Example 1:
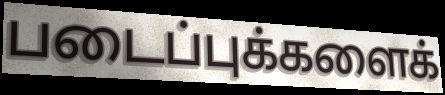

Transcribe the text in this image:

படைப்புக்களைக்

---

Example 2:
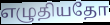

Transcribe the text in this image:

எழுதியதோ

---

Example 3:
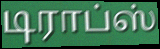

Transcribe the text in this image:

டிராப்ஸ்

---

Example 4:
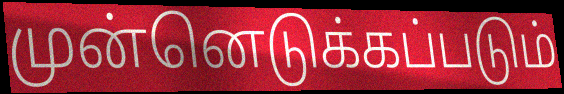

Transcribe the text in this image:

முன்னெடுக்கப்படும்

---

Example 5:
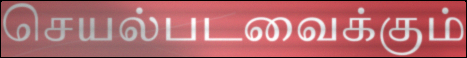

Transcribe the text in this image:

செயல்படவைக்கும்